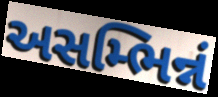
અસમ્ભિન્નં